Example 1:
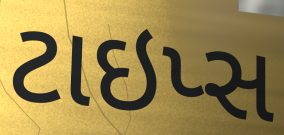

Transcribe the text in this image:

ટાઇપ્સ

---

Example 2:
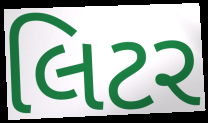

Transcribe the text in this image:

લિટર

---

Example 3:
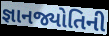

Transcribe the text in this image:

જ્ઞાનજ્યોતિની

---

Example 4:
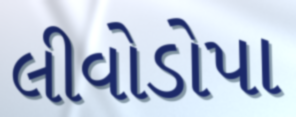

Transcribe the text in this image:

લીવોડોપા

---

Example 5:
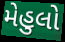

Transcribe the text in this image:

મેહુલો